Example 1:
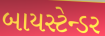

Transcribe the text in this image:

બાયસ્ટેન્ડર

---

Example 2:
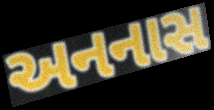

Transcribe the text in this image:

અનનાસ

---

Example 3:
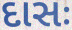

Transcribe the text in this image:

દાસઃ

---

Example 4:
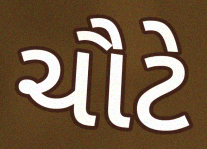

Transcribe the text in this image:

ચૌટે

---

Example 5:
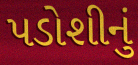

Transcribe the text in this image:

પડોશીનું